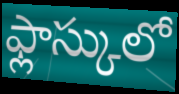
ఫ్లాస్కులో